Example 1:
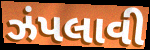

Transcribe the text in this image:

ઝંપલાવી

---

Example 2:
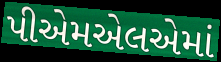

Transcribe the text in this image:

પીએમએલએમાં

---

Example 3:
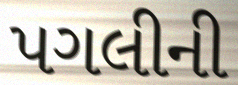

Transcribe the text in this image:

પગલીની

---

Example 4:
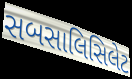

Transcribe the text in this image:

સબસાલિસિલેટ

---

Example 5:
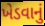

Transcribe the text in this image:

ખેડવાનું